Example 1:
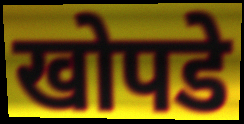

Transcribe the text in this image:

खोपडे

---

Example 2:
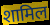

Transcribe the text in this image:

शामिल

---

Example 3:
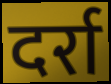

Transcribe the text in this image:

दर्रा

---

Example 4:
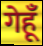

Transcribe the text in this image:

गेहूँ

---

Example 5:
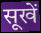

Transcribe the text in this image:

सूखें